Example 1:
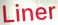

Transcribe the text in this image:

Liner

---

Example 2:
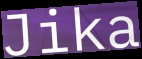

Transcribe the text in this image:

Jika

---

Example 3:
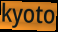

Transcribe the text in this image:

kyoto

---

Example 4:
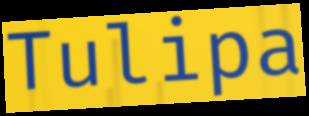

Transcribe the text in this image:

Tulipa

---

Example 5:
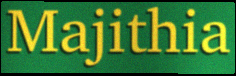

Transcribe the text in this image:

Majithia